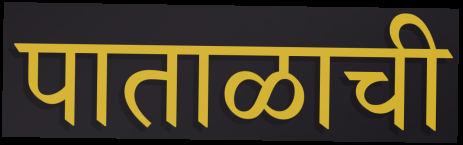
पाताळाची